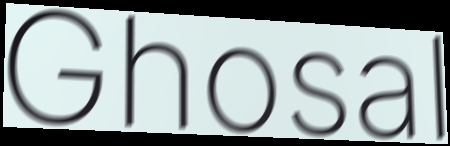
Ghosal